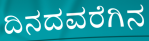
ದಿನದವರೆಗಿನ